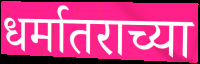
धर्मातराच्या